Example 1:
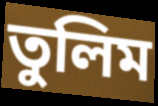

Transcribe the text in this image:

তুলিম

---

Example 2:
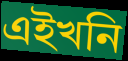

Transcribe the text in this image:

এইখনি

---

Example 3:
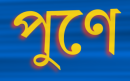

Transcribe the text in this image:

পুণে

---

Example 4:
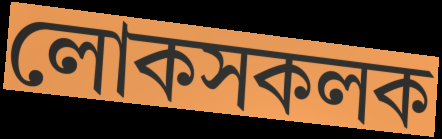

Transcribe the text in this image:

লোকসকলক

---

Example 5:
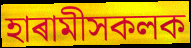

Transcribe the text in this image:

হাৰামীসকলক